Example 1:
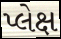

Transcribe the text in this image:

પ્લેક્ષ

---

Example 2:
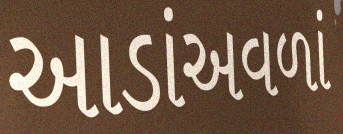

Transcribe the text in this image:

આડાંઅવળાં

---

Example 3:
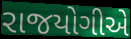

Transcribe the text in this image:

રાજયોગીએ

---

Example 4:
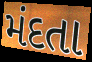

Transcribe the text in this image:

મંદતા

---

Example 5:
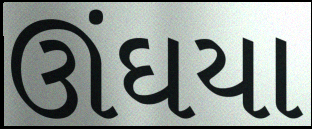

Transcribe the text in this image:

ઊંઘયા